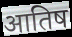
आतिष